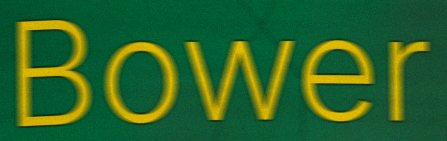
Bower